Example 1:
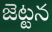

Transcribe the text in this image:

జెట్టన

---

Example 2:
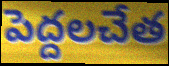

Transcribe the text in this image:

పెద్దలచేత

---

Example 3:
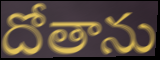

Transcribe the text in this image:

దోతాను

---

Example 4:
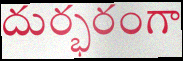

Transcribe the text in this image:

దుర్భరంగా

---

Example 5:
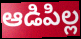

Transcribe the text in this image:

ఆడిపిల్ల